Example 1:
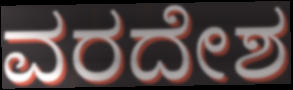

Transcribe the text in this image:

ವರದೇಶ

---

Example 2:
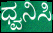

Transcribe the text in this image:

ಧ್ವನಿಸಿ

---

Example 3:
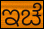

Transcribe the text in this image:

ಇಚೆ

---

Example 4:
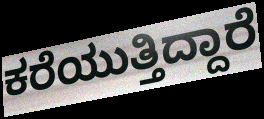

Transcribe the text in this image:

ಕರೆಯುತ್ತಿದ್ದಾರೆ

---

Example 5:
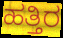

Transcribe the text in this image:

ಹತ್ತಿರ